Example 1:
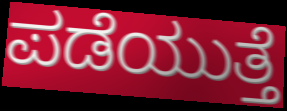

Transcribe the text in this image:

ಪಡೆಯುತ್ತೆ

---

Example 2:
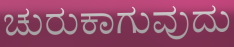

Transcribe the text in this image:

ಚುರುಕಾಗುವುದು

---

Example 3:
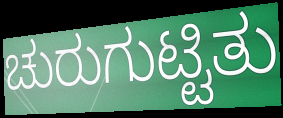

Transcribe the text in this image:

ಚುರುಗುಟ್ಟಿತು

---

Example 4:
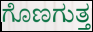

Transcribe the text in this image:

ಗೊಣಗುತ್ತ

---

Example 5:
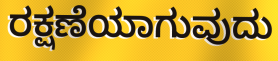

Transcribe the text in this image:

ರಕ್ಷಣೆಯಾಗುವುದು